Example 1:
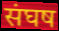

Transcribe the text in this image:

संघष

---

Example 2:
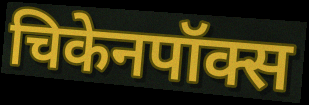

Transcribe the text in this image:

चिकेनपॉक्स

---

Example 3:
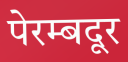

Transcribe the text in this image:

पेरम्बदूर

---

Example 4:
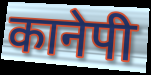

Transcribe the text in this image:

कानेपी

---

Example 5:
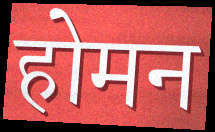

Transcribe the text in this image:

होमन